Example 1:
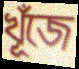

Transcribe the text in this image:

খূঁজে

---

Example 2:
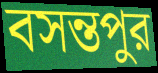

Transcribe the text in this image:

বসন্তপুর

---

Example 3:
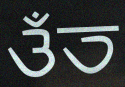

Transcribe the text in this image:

ওঁত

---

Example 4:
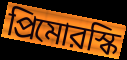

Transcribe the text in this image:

প্রিমোরস্কি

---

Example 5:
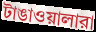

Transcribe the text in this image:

টাঙাওয়ালারা